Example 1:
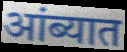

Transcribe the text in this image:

आंब्यात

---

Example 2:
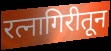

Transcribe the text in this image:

रत्नागिरीतून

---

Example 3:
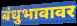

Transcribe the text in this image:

बंधुभावावर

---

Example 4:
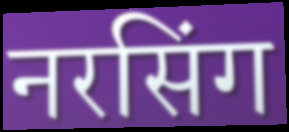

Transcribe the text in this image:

नरसिंग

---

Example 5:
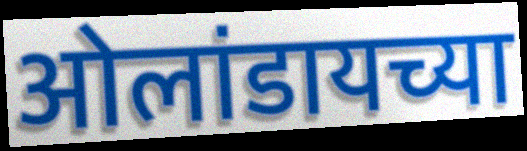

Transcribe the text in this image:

ओलांडायच्या